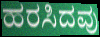
ಹರಸಿದವು